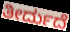
ತೀರ್ದುದೆ